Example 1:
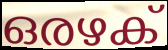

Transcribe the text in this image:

ഒരഴക്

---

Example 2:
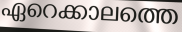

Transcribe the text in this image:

ഏറെക്കാലത്തെ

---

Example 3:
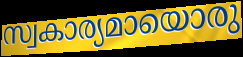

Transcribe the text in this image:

സ്വകാര്യമായൊരു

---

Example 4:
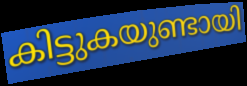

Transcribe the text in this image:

കിട്ടുകയുണ്ടായി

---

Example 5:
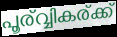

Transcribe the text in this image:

പൂര്വ്വികര്ക്ക്